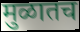
मुळातच